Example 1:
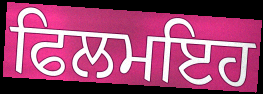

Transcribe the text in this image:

ਫਿਲਮਇਹ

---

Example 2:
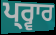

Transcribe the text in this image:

ਪ੍ਰ੍ਵਾਰ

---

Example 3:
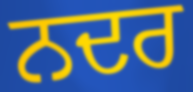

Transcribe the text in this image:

ਨਦਰ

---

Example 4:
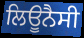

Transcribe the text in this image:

ਲਿਊਨੈਸੀ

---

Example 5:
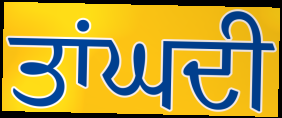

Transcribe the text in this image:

ਤਾਂਘਦੀ